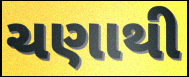
ચણાથી